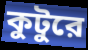
কুটুরে